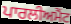
ਪਾਰਲੀਅਮੈਂਟ